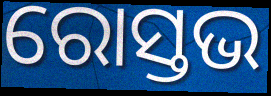
ରୋସ୍ତଭ